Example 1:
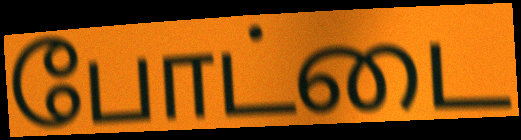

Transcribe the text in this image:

போட்டை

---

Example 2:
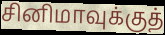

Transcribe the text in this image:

சினிமாவுக்குத்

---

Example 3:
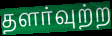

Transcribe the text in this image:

தளர்வுற்ற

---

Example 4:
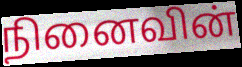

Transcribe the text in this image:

நினைவின்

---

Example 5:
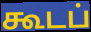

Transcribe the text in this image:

கூடப்